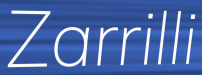
Zarrilli